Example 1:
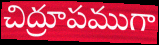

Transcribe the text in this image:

చిద్రూపముగా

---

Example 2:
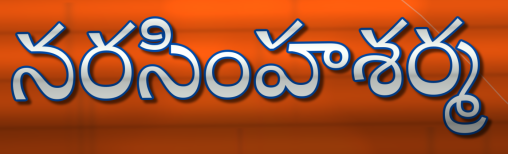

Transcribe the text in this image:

నరసింహశర్మ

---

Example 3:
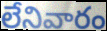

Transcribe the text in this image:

లేనివారం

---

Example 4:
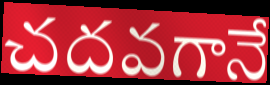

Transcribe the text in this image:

చదవగానే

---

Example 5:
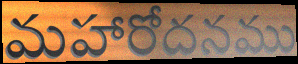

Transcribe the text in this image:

మహారోదనము